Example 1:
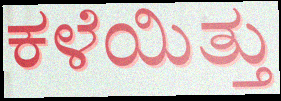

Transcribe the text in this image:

ಕಳೆಯಿತ್ತು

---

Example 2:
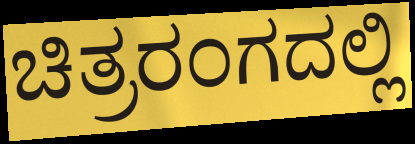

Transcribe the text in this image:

ಚಿತ್ರರಂಗದಲ್ಲಿ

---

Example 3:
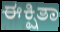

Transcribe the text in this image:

ಈಕ್ಷಿತಾ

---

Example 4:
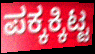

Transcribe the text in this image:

ಪಕ್ಕಕ್ಕಿಟ್ಟ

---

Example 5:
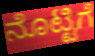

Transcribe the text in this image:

ನೊಟ್ಟಿಗೆ